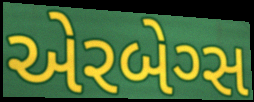
એરબેગ્સ